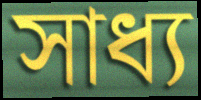
সাধ্য